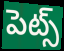
పెట్స్